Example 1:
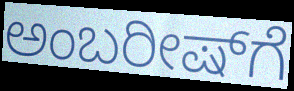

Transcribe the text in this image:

ಅಂಬರೀಷ್‌ಗೆ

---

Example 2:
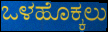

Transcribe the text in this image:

ಒಳಹೊಕ್ಕಲು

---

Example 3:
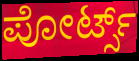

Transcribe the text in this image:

ಪೋರ್ಟ್ಸ್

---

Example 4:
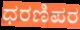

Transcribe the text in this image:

ಧರಣಿಪರ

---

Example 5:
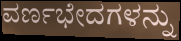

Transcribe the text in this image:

ವರ್ಣಭೇದಗಳನ್ನು